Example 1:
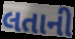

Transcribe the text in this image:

લતાની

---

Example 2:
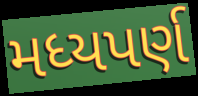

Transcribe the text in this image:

મધ્યપર્ણ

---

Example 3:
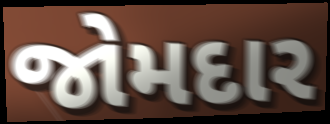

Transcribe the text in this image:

જોમદાર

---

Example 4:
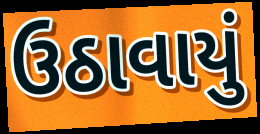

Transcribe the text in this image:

ઉઠાવાયું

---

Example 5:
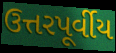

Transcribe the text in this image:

ઉત્તરપૂર્વીય